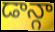
డాన్గా